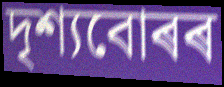
দৃশ্যবোৰৰ